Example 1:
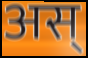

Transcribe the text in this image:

अस्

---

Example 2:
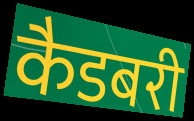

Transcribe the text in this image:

कैडबरी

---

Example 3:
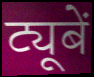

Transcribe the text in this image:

ट्यूबें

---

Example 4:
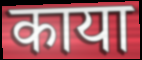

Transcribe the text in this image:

काया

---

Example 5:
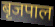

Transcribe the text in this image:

बृजपाल